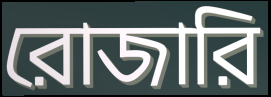
রোজারি